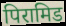
पिरामिड